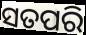
ସତପରି